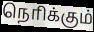
நெரிக்கும்